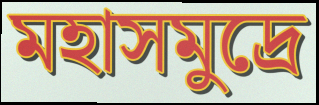
মহাসমুদ্রে